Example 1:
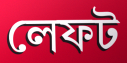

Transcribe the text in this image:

লেফট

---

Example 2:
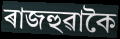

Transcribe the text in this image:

ৰাজহুৱাকৈ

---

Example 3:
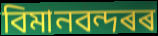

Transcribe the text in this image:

বিমানবন্দৰৰ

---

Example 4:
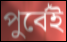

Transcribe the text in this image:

পুৰ্বেই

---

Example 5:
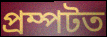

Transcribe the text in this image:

প্ৰম্পটত